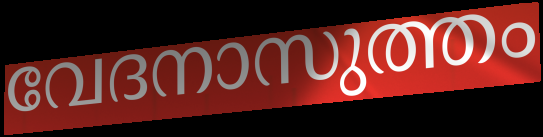
വേദനാസുത്തം